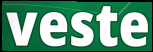
veste